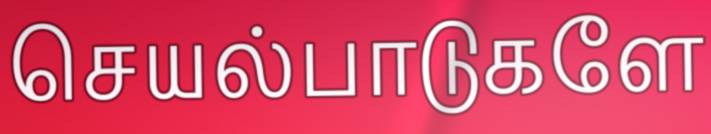
செயல்பாடுகளே